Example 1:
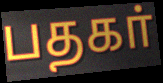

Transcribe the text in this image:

பதகர்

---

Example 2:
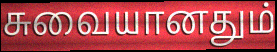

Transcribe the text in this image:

சுவையானதும்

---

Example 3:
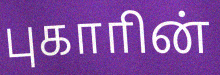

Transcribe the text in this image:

புகாரின்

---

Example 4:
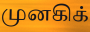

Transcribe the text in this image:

முனகிக்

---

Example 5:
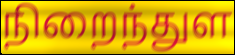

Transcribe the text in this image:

நிறைந்துள